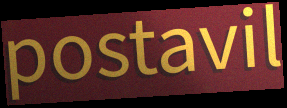
postavil